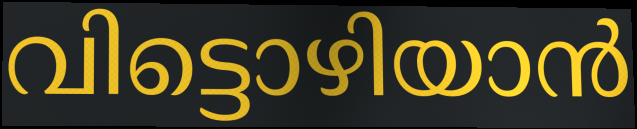
വിട്ടൊഴിയാൻ